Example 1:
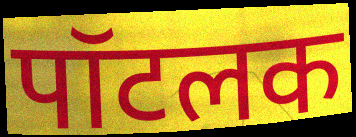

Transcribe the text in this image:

पॉटलक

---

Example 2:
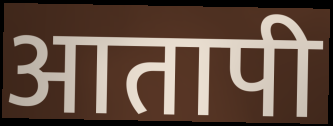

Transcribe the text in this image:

आतापी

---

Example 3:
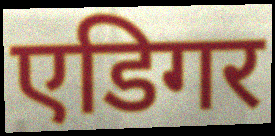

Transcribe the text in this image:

एडिगर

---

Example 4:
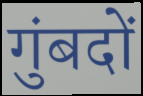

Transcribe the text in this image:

गुंबदों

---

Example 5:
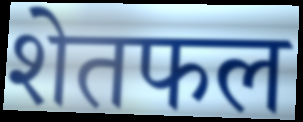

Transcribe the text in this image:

शेतफल